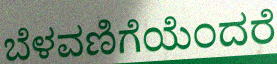
ಬೆಳವಣಿಗೆಯೆಂದರೆ